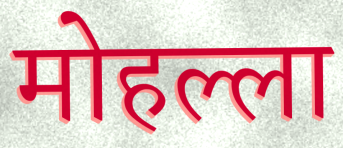
मोहल्‍ला